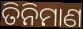
ତିନିମାଣ